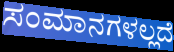
ಸಂಮಾನಗಳಲ್ಲದೆ